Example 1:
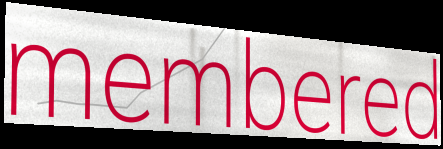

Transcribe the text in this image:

membered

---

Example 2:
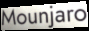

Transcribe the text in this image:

Mounjaro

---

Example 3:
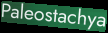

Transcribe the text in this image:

Paleostachya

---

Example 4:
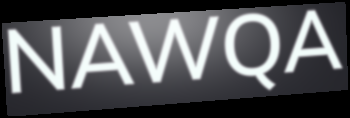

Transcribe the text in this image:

NAWQA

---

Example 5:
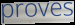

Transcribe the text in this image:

proves